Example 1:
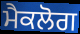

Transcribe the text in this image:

ਮੈਕਲੋਗ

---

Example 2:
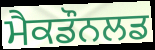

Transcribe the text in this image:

ਮੈਕਡੌਨਲਡ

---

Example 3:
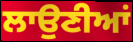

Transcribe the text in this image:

ਲਾਉਣੀਆਂ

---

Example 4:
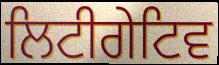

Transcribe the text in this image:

ਲਿਟੀਗੇਟਿਵ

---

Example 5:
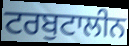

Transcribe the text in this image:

ਟਰਬੁਟਾਲੀਨ